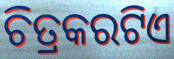
ଚିତ୍ରକରଟିଏ